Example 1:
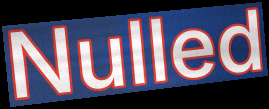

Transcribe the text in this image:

Nulled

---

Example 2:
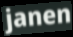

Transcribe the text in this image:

janen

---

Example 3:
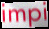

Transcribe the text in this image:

impi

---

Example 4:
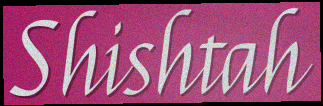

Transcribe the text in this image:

Shishtah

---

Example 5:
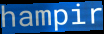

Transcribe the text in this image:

hampir